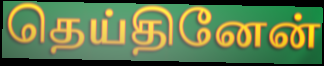
தெய்தினேன்